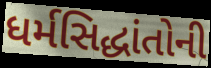
ધર્મસિદ્ધાંતોની